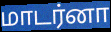
மாடர்னா